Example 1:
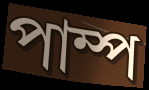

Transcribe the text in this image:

পাম্প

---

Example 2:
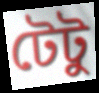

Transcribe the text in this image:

টেটু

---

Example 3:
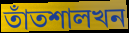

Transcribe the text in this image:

তাঁতশালখন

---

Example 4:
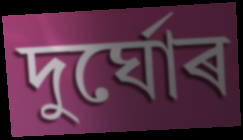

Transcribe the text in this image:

দুৰ্ঘোৰ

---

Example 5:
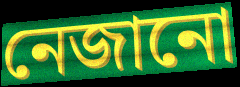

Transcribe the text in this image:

নেজানো